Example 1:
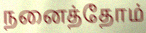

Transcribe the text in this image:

நனைத்தோம்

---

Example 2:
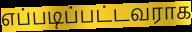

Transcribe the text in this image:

எப்படிப்பட்டவராக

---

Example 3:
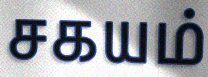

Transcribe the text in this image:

சகயம்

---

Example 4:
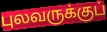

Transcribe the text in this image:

புலவருக்குப்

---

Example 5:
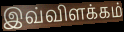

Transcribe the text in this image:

இவ்விளக்கம்